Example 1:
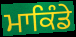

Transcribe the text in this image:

ਮਾਕਿੰਡੇ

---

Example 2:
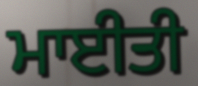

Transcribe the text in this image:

ਮਾਈਤੀ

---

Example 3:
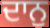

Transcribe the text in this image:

ਦਾਨੁ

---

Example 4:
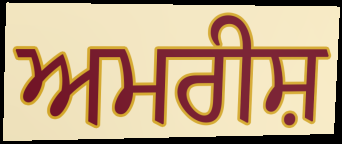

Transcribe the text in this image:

ਅਮਰੀਸ਼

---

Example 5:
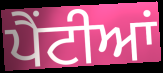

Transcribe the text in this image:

ਪੈਂਟੀਆਂ